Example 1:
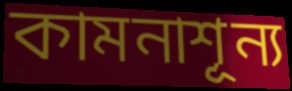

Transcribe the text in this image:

কামনাশূন্য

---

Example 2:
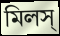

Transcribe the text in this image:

মিলস্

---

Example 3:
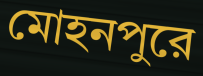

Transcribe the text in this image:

মোহনপুরে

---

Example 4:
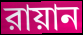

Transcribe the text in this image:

রায়ান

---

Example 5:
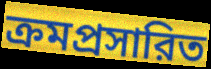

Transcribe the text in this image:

ক্রমপ্রসারিত